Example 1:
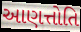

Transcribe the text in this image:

આણત્તોતિ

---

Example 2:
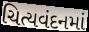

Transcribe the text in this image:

ચિત્યવંદનમાં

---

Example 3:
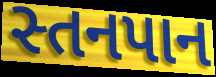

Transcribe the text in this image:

સ્તનપાન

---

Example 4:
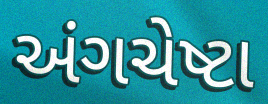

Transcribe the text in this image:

અંગચેષ્ટા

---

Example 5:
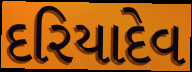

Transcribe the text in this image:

દરિયાદેવ